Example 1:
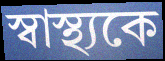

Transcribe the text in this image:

স্বাস্থ্যকে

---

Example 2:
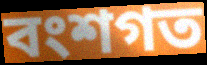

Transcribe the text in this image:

বংশগত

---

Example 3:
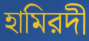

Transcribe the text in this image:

হামিরদী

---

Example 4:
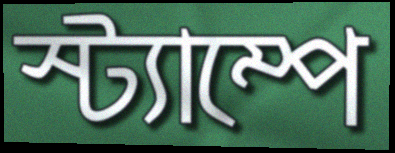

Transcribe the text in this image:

স্ট্যাম্পে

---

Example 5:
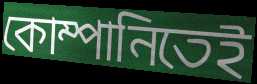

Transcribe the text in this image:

কোম্পানিতেই